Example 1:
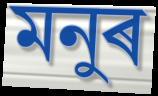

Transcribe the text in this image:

মনুৰ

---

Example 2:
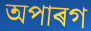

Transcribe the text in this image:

অপাৰগ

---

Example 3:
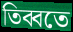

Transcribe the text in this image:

তিব্বতে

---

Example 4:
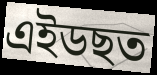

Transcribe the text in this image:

এইডছত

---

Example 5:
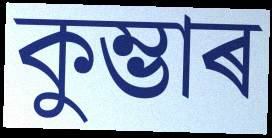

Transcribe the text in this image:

কুম্ভাৰ